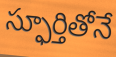
స్ఫూర్తితోనే